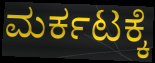
ಮರ್ಕಟಕ್ಕೆ